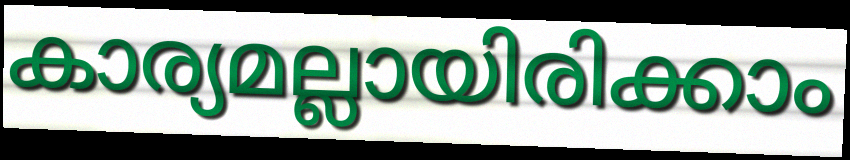
കാര്യമല്ലായിരിക്കാം